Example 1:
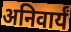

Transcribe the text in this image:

अनिवार्यं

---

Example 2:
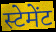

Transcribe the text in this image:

स्टेमेंट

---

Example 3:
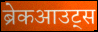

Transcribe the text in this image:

ब्रेकआउट्स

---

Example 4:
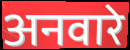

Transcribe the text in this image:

अनवारे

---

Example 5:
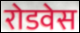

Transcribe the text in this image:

रोडवेस